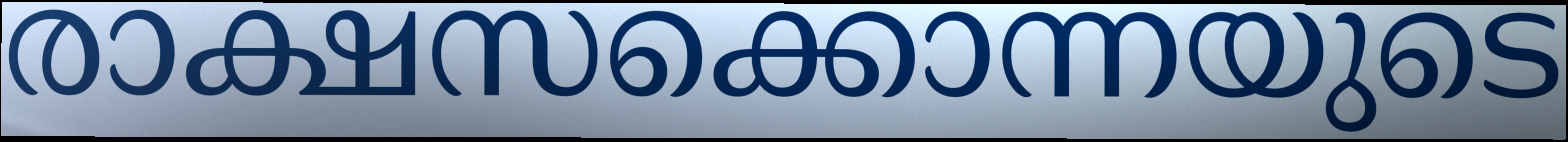
രാക്ഷസക്കൊന്നയുടെ